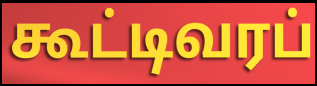
கூட்டிவரப்